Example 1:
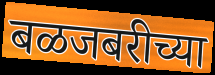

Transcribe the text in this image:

बळजबरीच्या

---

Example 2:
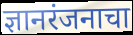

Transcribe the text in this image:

ज्ञानरंजनाचा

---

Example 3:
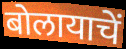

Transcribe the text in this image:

बोलायाचें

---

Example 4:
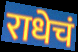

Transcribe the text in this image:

राधेचं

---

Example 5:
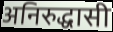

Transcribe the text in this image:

अनिरुद्धासी